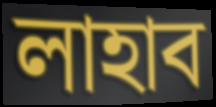
লাহাব